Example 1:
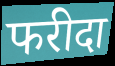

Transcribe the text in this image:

फरीदा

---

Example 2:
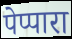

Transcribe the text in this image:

पेप्पारा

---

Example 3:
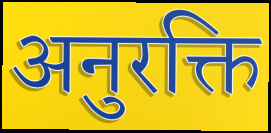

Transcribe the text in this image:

अनुरक्ति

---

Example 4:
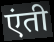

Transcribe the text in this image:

एंती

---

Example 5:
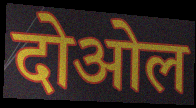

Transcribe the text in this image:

दोओल